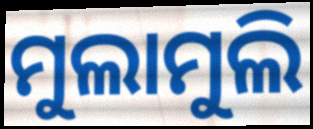
ମୁଲାମୁଲି